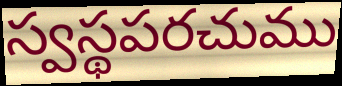
స్వస్థపరచుము